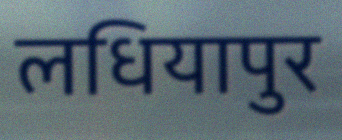
लधियापुर